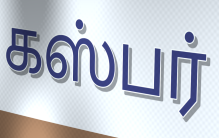
கஸ்பர்